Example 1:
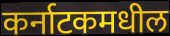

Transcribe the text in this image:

कर्नाटकमधील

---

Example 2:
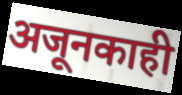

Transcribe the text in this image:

अजूनकाही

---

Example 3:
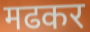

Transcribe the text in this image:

मढकर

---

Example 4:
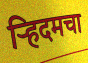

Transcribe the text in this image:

ऱ्हिदमचा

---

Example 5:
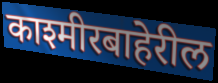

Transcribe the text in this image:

काश्मीरबाहेरील